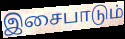
இசைபாடும்